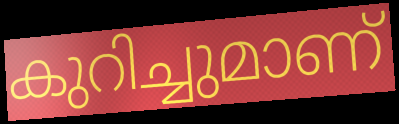
കുറിച്ചുമാണ്